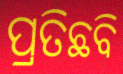
ପ୍ରତିଛବି